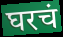
घरचं